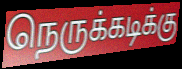
நெருக்கடிக்கு